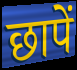
छापें